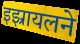
इझ्रायलने